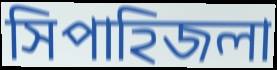
সিপাহিজলা